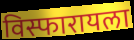
विस्फारायला